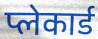
प्लेकार्ड